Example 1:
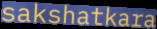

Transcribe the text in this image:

sakshatkara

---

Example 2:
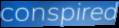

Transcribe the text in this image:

conspired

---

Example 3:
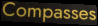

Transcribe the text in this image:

Compasses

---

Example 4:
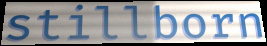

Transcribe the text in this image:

stillborn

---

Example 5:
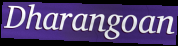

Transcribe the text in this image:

Dharangoan